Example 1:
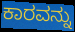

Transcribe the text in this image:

ಕಾರವನ್ನು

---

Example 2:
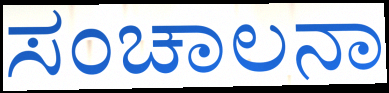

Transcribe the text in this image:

ಸಂಚಾಲನಾ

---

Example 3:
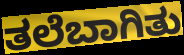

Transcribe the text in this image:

ತಲೆಬಾಗಿತು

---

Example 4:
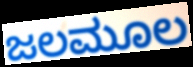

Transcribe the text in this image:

ಜಲಮೂಲ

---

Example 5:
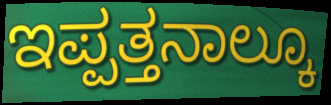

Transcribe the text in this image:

ಇಪ್ಪತ್ತನಾಲ್ಕೂ